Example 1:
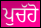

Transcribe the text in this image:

ਪੁਚੱਹੋ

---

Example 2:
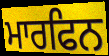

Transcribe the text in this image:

ਮਾਰਫਿਨ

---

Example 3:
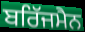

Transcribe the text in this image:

ਬਰਿੱਜਮੈਨ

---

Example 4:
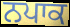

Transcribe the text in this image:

ਨਪਾਕ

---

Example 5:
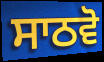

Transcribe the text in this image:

ਸਾਠਵੋ